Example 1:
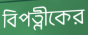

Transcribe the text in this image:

বিপত্নীকের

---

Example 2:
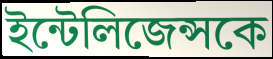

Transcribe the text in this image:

ইন্টেলিজেন্সকে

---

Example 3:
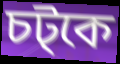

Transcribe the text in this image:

চট্‌কে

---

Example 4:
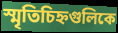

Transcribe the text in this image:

স্মৃতিচিহ্নগুলিকে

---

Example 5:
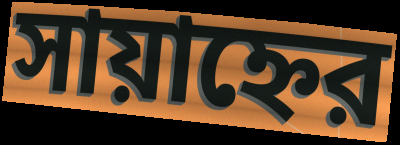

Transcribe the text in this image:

সায়াহ্নের